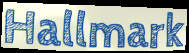
Hallmark